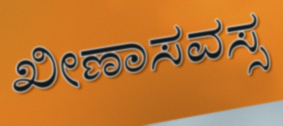
ಖೀಣಾಸವಸ್ಸ